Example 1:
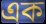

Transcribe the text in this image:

এক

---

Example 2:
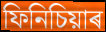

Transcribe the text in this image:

ফিনিচিয়াৰ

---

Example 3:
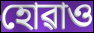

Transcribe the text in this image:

হোৱাও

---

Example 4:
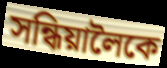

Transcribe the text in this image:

সন্ধিয়ালৈকে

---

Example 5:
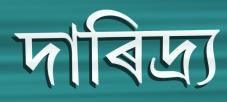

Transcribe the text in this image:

দাৰিদ্ৰ্য